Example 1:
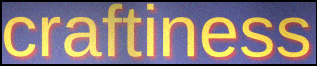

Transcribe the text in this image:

craftiness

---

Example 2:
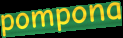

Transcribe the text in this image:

pompona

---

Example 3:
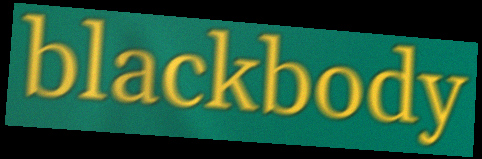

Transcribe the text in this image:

blackbody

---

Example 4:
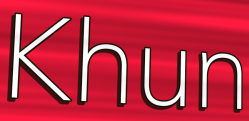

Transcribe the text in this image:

Khun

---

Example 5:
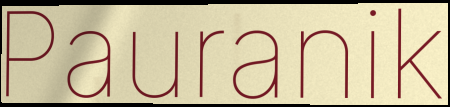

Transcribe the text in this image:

Pauranik